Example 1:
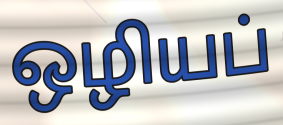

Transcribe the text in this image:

ஒழியப்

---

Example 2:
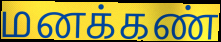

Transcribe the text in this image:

மனக்கண்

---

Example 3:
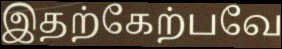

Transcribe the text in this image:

இதற்கேற்பவே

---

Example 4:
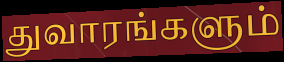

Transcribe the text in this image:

துவாரங்களும்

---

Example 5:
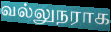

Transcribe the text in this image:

வல்லுநராக